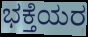
ಭಕ್ತೆಯರ